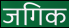
जगिक